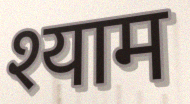
श्याम